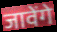
जावेंगे